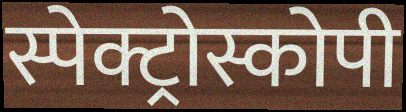
स्पेक्ट्रोस्कोपी